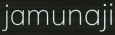
jamunaji